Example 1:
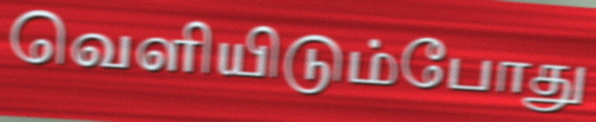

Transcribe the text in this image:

வெளியிடும்போது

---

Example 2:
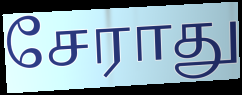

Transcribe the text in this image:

சேராது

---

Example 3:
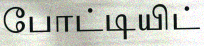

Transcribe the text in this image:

போட்டியிட்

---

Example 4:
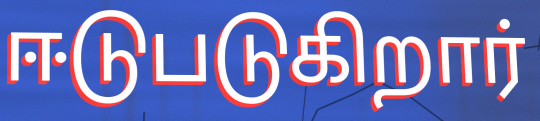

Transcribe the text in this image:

ஈடுபடுகிறார்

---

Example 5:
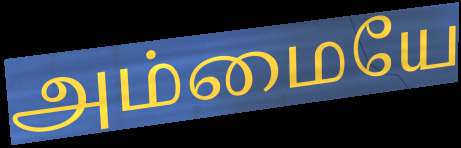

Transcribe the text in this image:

அம்மையே